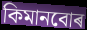
কিমানবোৰ